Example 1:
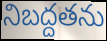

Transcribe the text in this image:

నిబద్దతను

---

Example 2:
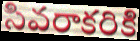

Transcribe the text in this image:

సివరాకరికి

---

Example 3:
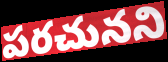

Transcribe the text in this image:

పరచునని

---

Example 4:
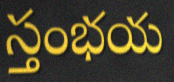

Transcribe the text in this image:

స్తంభయ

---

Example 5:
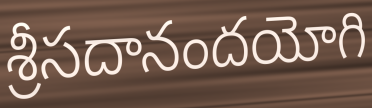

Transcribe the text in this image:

శ్రీసదానందయోగి